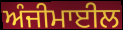
ਅੰਜੀਮਾਈਲ